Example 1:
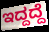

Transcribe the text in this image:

ಇದ್ದದ್ದೆ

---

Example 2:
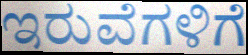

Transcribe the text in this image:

ಇರುವೆಗಳಿಗೆ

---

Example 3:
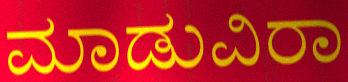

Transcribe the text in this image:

ಮಾಡುವಿರಾ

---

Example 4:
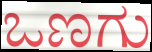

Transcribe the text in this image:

ಒಣಗು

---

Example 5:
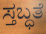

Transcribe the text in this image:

ಸ್ತಬ್ಧತೆ